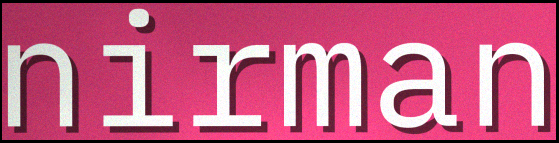
nirman